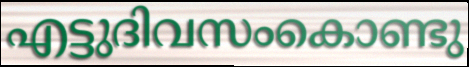
എട്ടുദിവസംകൊണ്ടു